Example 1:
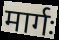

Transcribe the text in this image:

मार्गः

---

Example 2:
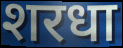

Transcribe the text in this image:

शरधा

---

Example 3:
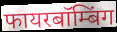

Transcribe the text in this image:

फायरबॉम्बिंग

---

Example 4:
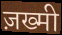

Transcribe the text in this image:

ज़ख्मी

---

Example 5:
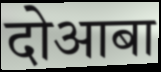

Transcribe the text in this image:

दोआबा